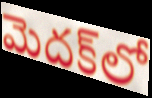
మెదక్‌లో